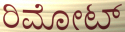
ರಿಮೋಟ್